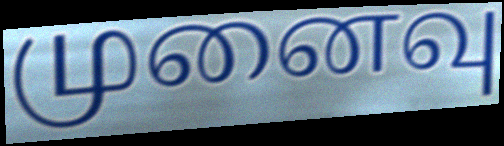
முனைவு